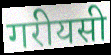
गरीयसी